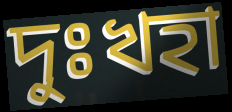
দুঃখহা